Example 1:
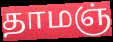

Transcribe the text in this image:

தாமஞ்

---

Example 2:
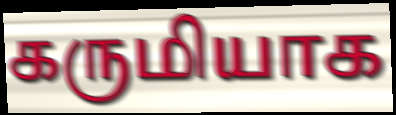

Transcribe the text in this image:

கருமியாக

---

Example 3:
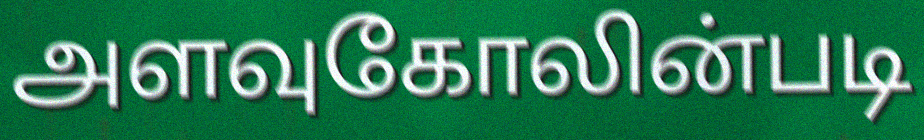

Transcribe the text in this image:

அளவுகோலின்படி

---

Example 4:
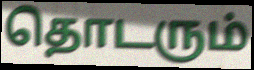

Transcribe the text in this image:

தொடரும்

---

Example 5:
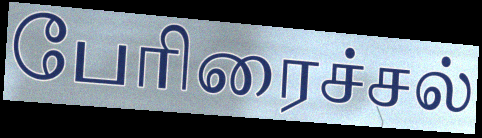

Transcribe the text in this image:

பேரிரைச்சல்